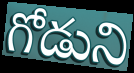
గోడుని